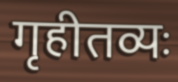
गृहीतव्यः